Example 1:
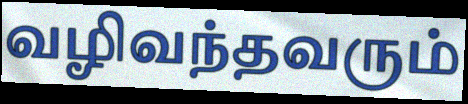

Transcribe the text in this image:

வழிவந்தவரும்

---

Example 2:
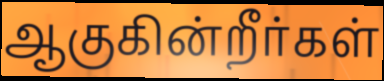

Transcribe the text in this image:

ஆகுகின்றீர்கள்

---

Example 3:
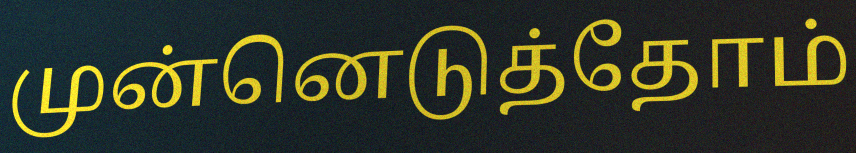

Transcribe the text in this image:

முன்னெடுத்தோம்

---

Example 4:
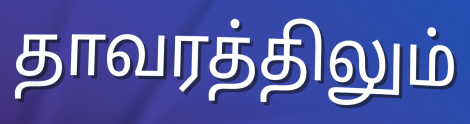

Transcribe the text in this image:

தாவரத்திலும்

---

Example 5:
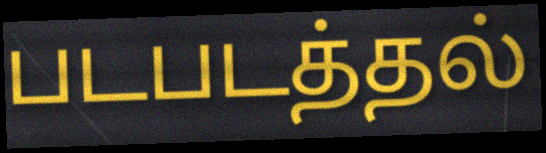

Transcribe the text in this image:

படபடத்தல்